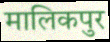
मालिकपुर